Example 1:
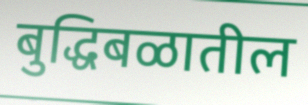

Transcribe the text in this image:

बुद्धिबळातील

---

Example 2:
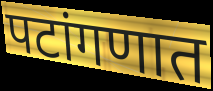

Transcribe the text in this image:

पटांगणात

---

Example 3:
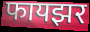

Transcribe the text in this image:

फायझर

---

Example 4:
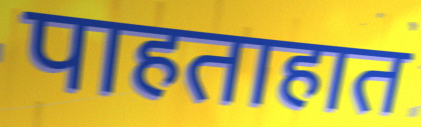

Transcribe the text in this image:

पाहताहात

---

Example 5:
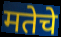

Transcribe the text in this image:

मतेचे